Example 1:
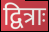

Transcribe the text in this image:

द्वित्राः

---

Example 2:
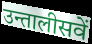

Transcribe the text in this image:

उन्तालीसवें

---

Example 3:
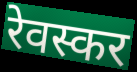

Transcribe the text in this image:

रेवस्कर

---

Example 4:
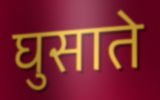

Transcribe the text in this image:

घुसाते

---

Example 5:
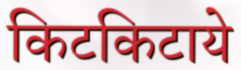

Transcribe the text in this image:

किटकिटाये